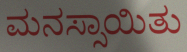
ಮನಸ್ಸಾಯಿತು